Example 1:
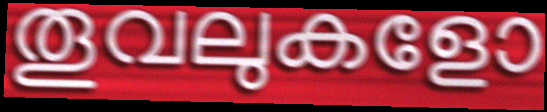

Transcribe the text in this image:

തൂവലുകളോ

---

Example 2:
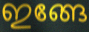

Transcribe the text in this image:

ഇങ്ങേ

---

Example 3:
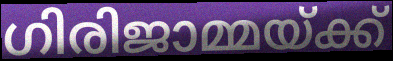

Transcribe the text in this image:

ഗിരിജാമ്മയ്ക്ക്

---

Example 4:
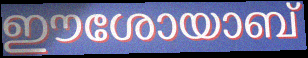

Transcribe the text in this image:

ഈശോയാബ്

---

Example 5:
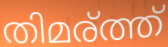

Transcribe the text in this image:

തിമര്ത്ത്